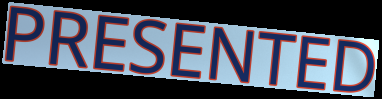
PRESENTED